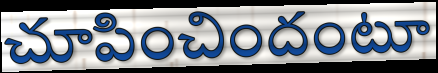
చూపించిందంటూ